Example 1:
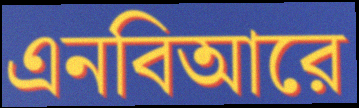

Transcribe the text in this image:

এনবিআরে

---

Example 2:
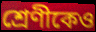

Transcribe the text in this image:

শ্রেণীকেও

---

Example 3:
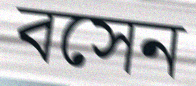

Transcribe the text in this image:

বসেন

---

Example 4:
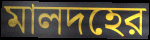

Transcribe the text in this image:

মালদহের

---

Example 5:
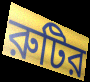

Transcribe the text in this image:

রুটির